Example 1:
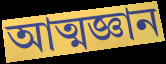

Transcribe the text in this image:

আত্মজ্ঞান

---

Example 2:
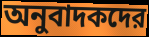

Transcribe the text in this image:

অনুবাদকদের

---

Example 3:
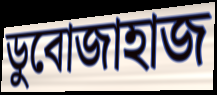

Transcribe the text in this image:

ডুবোজাহাজ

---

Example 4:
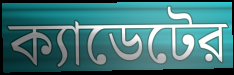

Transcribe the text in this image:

ক্যাডেটের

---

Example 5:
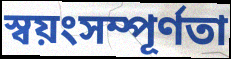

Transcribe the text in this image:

স্বয়ংসম্পূর্ণতা